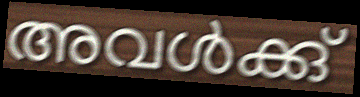
അവൾക്കു്